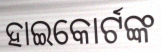
ହାଇକୋର୍ଟଙ୍କ